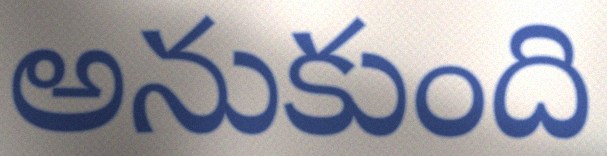
అనుకుంది